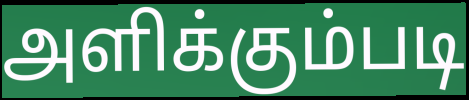
அளிக்கும்படி